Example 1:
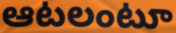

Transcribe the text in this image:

ఆటలంటూ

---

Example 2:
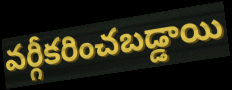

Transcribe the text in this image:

వర్గీకరించబడ్డాయి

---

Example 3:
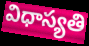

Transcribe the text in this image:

విధాస్యతి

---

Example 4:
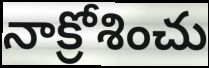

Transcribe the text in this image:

నాక్రోశించు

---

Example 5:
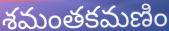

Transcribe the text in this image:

శమంతకమణిం